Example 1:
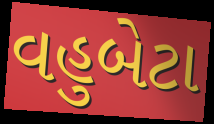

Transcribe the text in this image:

વહુબેટા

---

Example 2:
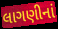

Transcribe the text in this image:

લાગણીનાં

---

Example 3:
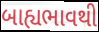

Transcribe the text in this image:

બાહ્યભાવથી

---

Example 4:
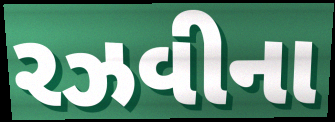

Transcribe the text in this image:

રઝવીના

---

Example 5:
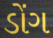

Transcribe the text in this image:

ડોંગ